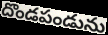
దొండపండును